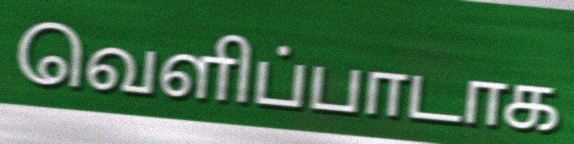
வெளிப்பாடாக